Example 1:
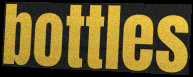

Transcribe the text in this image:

bottles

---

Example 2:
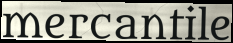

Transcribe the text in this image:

mercantile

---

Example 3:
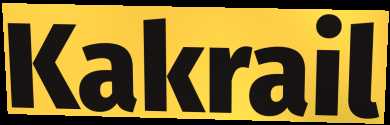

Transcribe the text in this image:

Kakrail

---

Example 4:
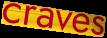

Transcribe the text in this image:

craves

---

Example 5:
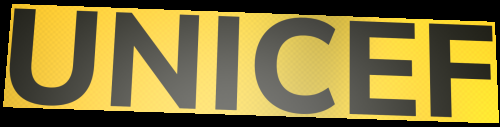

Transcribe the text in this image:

UNICEF